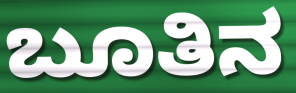
ಬೂತಿನ